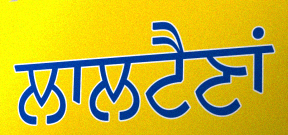
ਲਾਲਟੈਣਾਂ